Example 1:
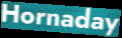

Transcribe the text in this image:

Hornaday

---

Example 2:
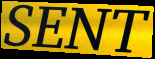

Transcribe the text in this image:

SENT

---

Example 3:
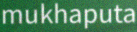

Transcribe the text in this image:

mukhaputa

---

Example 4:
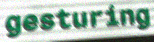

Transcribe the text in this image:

gesturing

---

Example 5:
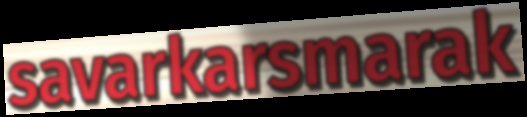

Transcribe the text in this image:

savarkarsmarak